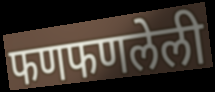
फणफणलेली